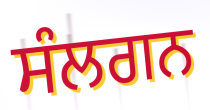
ਸੰਲਗਨ